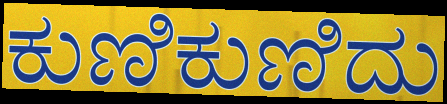
ಕುಣಿಕುಣಿದು